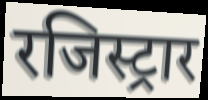
रजिस्ट्रार